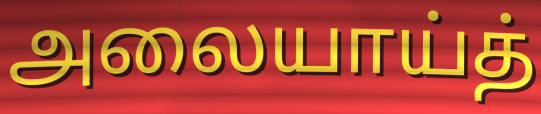
அலையாய்த்